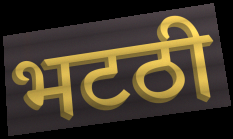
भटठी